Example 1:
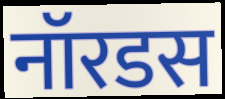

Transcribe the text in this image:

नॉरडस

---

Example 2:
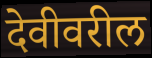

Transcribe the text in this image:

देवीवरील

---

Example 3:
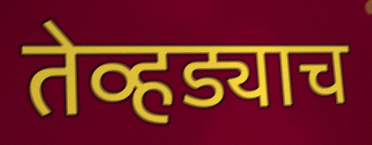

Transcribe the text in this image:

तेव्हड्याच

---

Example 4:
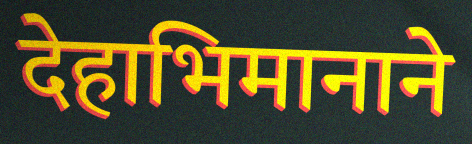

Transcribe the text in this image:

देहाभिमानाने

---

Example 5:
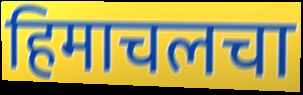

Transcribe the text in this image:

हिमाचलचा